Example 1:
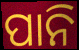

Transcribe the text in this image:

ପାନି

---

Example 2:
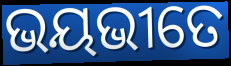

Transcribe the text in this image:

ଭୟଭୀତେ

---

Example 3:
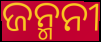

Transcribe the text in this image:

ଜନ୍ମନୀ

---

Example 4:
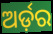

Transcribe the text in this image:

ଅର୍ଡ଼ର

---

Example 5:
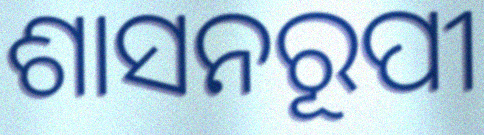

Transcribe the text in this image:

ଶାସନରୂପୀ